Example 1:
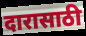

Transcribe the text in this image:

दारासाठी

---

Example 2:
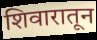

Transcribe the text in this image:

शिवारातून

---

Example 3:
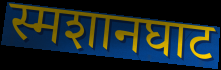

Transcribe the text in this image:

स्मशानघाट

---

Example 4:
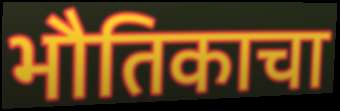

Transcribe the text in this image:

भौतिकाचा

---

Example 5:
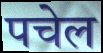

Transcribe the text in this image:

पचेल